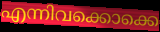
എന്നിവക്കൊക്കെ